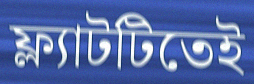
ফ্ল্যাটটিতেই